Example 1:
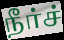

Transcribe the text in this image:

நீர்ச்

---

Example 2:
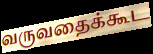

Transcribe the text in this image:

வருவதைக்கூட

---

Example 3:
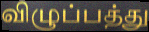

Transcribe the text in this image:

விழுப்பத்து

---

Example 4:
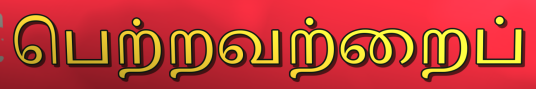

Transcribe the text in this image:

பெற்றவற்றைப்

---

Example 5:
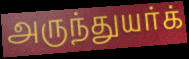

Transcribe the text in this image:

அருந்துயர்க்